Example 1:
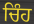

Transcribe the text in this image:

ਚਿੰਹ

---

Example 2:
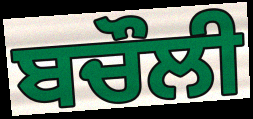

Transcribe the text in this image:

ਬਚੌਲੀ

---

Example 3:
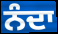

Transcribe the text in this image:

ਨੰਦਾ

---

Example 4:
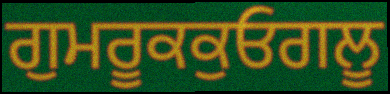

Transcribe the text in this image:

ਗੁਮਰੂਕਕੁਓਗਲੂ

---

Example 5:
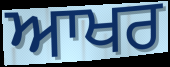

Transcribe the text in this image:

ਆਖਰ